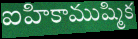
ఐహికాముష్మిక